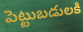
పెట్టుబడులకి